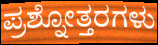
ಪ್ರಶ್ನೋತ್ತರಗಳು